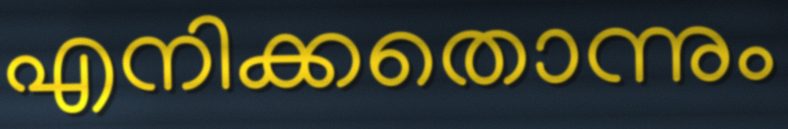
എനിക്കതൊന്നും